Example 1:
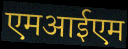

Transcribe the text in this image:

एमआईएम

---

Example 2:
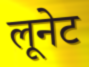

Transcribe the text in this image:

लूनेट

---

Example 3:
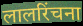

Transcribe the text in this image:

लालरिंचना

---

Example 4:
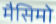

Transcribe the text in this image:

मैसिमो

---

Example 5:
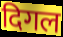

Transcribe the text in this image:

दिगल